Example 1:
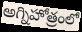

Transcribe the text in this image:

అగ్నిహోత్రంలో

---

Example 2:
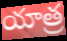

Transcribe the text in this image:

యాత్ర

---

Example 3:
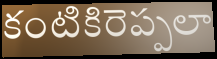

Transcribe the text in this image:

కంటికిరెప్పలా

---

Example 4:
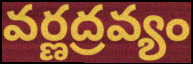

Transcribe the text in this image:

వర్ణద్రవ్యం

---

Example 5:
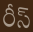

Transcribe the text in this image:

రీస్